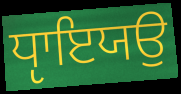
ਧੵਾਇਯਉ